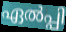
ഏൽപ്പി